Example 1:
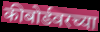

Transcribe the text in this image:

कीबोर्डवरच्या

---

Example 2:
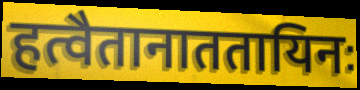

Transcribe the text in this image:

हत्वैतानाततायिनः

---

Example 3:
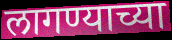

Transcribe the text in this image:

लागण्याच्या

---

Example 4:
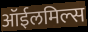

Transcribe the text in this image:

ऑईलमिल्स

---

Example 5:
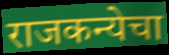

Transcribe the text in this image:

राजकन्येचा